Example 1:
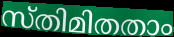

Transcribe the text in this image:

സ്തിമിതതാം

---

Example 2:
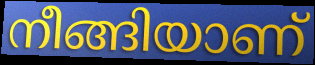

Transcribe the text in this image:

നീങ്ങിയാണ്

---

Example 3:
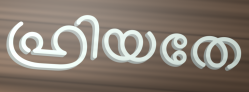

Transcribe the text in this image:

ഹ്രിയതേ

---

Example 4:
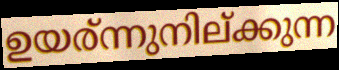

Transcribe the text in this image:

ഉയര്ന്നുനില്ക്കുന്ന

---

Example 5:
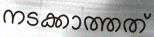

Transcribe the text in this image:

നടക്കാത്തത്